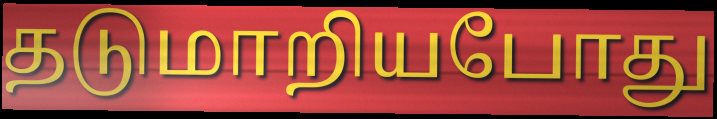
தடுமாறியபோது